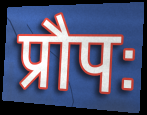
प्रौपः